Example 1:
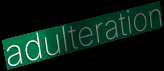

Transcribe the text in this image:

adulteration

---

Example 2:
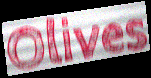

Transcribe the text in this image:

Olives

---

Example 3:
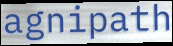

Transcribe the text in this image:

agnipath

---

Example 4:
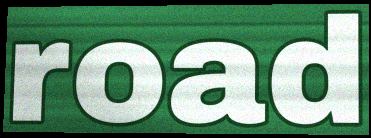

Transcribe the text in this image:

road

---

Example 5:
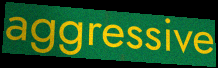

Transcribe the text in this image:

aggressive